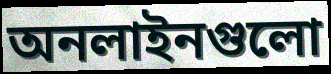
অনলাইনগুলো